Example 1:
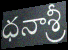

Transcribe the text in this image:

ధనాశ్రీ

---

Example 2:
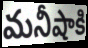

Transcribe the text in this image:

మనీషాకి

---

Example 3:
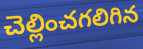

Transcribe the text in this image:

చెల్లించగలిగిన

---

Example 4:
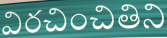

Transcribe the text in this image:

విరచించితిని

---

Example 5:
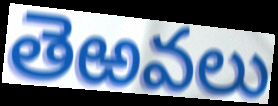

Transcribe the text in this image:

తెఱవలు